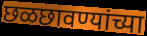
छळछावण्यांच्या